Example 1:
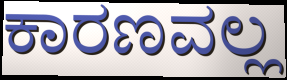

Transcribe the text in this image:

ಕಾರಣವಲ್ಲ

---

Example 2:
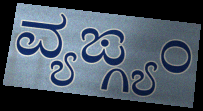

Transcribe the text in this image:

ವ್ಯಙ್ಗ್ಯಂ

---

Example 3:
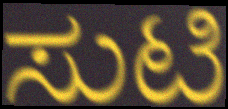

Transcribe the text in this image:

ಸುಟಿ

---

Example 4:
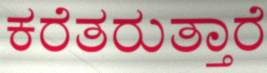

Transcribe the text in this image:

ಕರೆತರುತ್ತಾರೆ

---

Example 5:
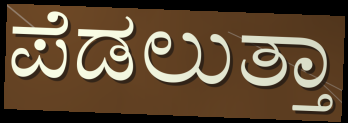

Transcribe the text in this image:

ಪೆಡಲುತ್ತಾ